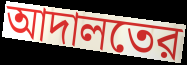
আদালতের